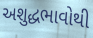
અશુદ્ધભાવોથી